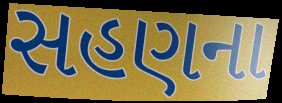
સહણના